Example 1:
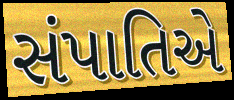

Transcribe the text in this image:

સંપાતિએ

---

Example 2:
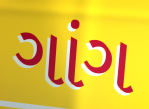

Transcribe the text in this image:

ગાંગ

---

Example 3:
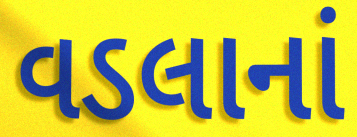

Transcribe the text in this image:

વડલાનાં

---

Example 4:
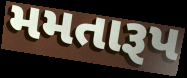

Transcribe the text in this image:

મમતારૂપ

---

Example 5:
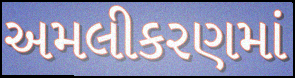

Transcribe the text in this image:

અમલીકરણમાં